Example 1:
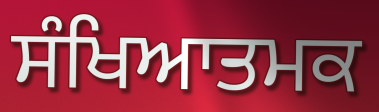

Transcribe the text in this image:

ਸੰਖਿਆਤਮਕ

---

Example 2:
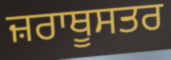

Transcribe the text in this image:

ਜ਼ਰਾਥੂਸਤਰ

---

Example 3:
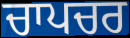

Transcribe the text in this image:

ਚਾਪਚਰ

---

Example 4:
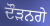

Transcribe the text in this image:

ਦੌੜਨਗੇ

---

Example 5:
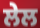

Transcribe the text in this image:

ਲੇਲ